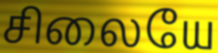
சிலையே